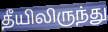
தீயிலிருந்து